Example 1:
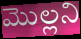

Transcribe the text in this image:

మొల్లని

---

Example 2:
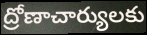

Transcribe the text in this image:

ద్రోణాచార్యులకు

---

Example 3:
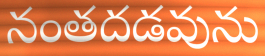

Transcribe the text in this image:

నంతదడవును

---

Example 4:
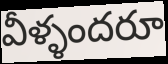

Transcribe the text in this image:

వీళ్ళందరూ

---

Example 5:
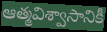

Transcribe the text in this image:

ఆత్మవిశ్వాసానికీ